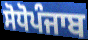
ਸੋਧੋਪੰਜਾਬ